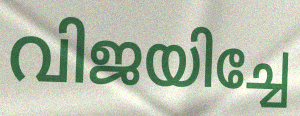
വിജയിച്ചേ